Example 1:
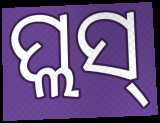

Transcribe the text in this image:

ପ୍ଲସ୍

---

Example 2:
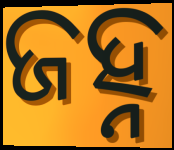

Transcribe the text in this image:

ଜହ୍ନ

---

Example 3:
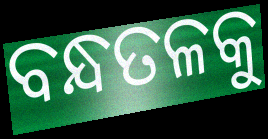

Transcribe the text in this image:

ବନ୍ଧତଳକୁ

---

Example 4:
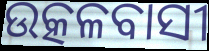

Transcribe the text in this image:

ଉତ୍କଳବାସୀ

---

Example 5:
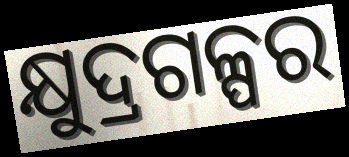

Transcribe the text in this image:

କ୍ଷୁଦ୍ରଗଳ୍ପର